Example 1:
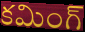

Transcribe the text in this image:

కమింగ్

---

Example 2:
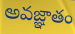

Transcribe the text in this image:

అవజ్ఞాతం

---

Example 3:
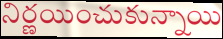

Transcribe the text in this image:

నిర్ణయించుకున్నాయి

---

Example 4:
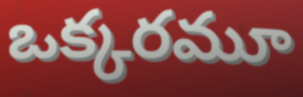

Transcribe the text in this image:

ఒక్కరమూ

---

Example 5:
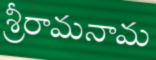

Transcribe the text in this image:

శ్రీరామనామ